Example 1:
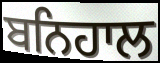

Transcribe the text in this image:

ਬਨਿਹਾਲ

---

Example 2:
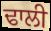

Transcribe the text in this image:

ਢਾਲੀ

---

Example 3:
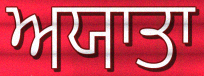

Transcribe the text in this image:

ਅਯਾਤਾ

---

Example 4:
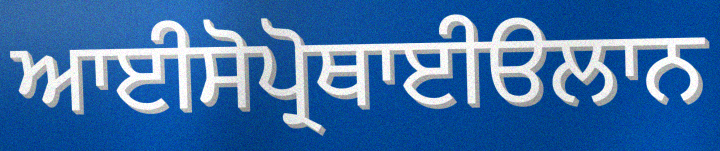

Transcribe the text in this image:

ਆਈਸੋਪ੍ਰੋਥਾਈੳਲਾਨ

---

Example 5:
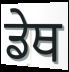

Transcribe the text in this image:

ਡੇਥ